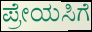
ಪ್ರೇಯಸಿಗೆ